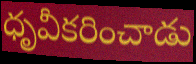
ధృవీకరించాడు